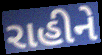
રાહીને